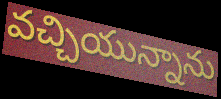
వచ్చియున్నాను